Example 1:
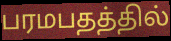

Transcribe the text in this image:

பரமபதத்தில்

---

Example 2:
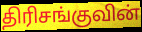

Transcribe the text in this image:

திரிசங்குவின்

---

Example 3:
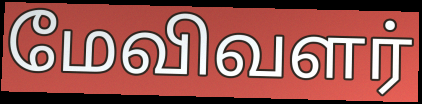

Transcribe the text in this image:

மேவிவளர்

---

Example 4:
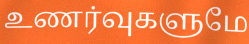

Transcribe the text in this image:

உணர்வுகளுமே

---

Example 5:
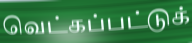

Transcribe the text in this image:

வெட்கப்பட்டுக்